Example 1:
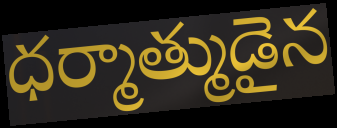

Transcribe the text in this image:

ధర్మాత్ముడైన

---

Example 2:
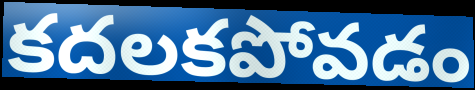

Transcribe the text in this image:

కదలకపోవడం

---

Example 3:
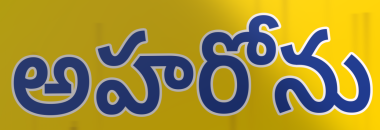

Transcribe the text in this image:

అహరోను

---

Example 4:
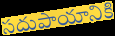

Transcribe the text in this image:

సదుపాయానికి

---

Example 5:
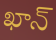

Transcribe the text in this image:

ఖాన్